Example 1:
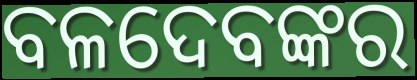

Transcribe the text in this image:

ବଳଦେବଙ୍କର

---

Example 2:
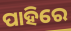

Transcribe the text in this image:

ପାହିରେ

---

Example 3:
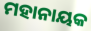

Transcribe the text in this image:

ମହାନାୟକ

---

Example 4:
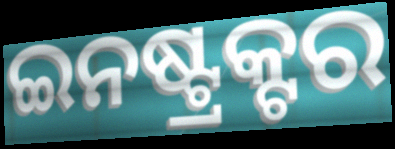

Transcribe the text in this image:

ଇନଷ୍ଟ୍ରକ୍ଟର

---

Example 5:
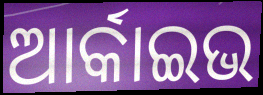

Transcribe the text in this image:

ଆର୍କାଇଭ